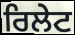
ਰਿਲੇਟ